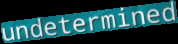
undetermined